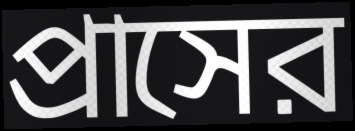
প্রাসের